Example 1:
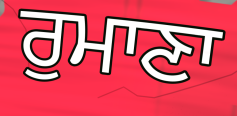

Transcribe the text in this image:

ਰੁਮਾਣਾ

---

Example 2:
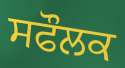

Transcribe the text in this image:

ਸਫੌਲਕ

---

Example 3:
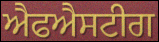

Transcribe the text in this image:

ਐਫਐਸਟੀਗ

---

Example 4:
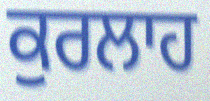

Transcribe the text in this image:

ਕੁਰਲਾਹ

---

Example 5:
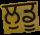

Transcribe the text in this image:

ਲੁਡੂ